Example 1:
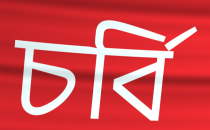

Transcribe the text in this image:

চৰ্বি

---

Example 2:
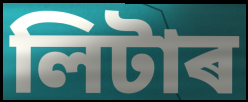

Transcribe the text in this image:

লিটাৰ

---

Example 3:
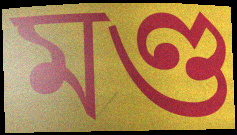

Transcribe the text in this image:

মণ্ড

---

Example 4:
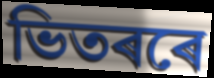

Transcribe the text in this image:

ভিতৰৰে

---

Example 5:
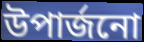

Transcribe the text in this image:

উপাৰ্জনো